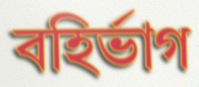
বহির্ভাগ